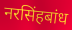
नरसिंहबांध